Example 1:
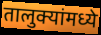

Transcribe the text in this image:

तालुक्यांमध्ये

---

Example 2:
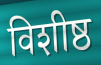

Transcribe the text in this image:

विशीष्ठ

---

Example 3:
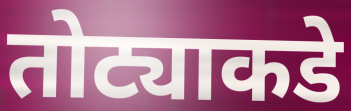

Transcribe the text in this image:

तोट्याकडे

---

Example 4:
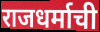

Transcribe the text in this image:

राजधर्माची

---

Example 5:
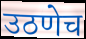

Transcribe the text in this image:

उठणेच